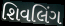
શિવલિંગ